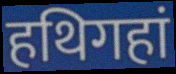
हथिगहां